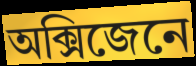
অক্সিজেনে